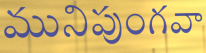
మునిపుంగవా